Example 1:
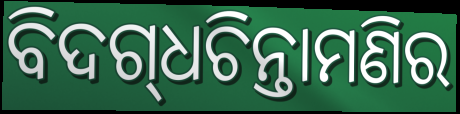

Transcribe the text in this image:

ବିଦଗ୍‌ଧଚିନ୍ତାମଣିର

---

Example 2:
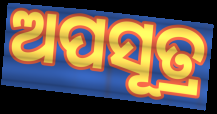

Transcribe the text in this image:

ଅପସୂତ୍ର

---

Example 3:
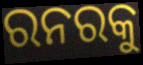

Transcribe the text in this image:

ରନରକୁ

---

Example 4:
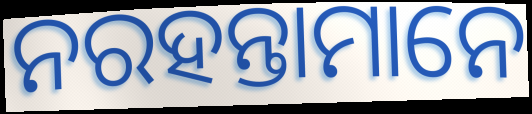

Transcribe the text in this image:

ନରହନ୍ତାମାନେ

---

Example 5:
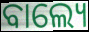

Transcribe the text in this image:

ବାଲ୍ୟେ